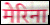
मेरिना